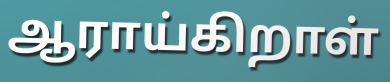
ஆராய்கிறாள்